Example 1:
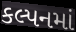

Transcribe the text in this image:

કલ્પનમાં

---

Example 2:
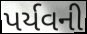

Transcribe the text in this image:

પર્યવની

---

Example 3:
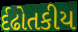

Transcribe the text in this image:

ર્દઢોતકીય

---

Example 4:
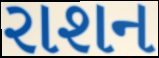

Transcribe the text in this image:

રાશન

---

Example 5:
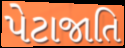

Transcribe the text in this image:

પેટાજાતિ